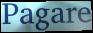
Pagare